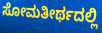
ಸೋಮತೀರ್ಥದಲ್ಲಿ